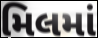
મિલમાં